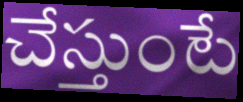
చేస్తుంటే